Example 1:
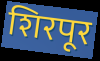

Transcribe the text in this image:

शिरपूर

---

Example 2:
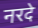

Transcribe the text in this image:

नरदे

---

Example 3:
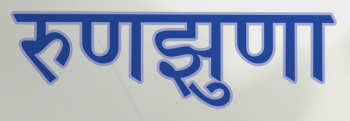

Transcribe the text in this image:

रुणझुणा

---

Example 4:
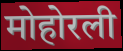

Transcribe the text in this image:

मोहोरली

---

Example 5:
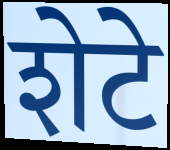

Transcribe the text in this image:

शेटे